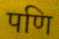
पणि